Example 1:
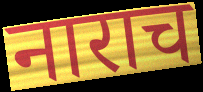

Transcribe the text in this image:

नाराच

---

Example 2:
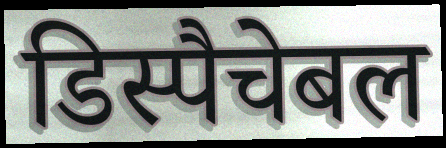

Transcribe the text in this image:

डिस्पैचेबल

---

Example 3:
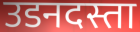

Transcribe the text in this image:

उडनदस्ता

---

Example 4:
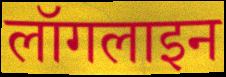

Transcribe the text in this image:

लॉगलाइन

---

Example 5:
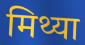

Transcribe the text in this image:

मिथ्‍या